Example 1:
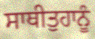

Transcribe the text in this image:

ਸਾਥੀਤੁਹਾਨੂੰ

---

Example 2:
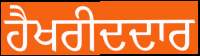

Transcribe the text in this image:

ਹੈਖਰੀਦਦਾਰ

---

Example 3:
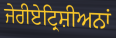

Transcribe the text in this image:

ਜੇਰੀਏਟ੍ਰਿਸ਼ੀਅਨਾਂ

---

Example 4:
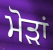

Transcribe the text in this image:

ਮੋੜਾਂ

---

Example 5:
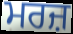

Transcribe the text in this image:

ਮਰਜ਼